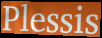
Plessis